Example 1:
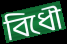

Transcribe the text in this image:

বিধৌ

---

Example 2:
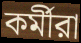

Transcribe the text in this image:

কর্মীরা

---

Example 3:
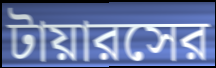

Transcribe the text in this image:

টায়ারসের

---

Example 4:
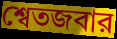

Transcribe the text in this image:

শ্বেতজবার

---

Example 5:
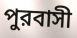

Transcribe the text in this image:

পুরবাসী